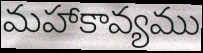
మహాకావ్యము